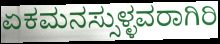
ಏಕಮನಸ್ಸುಳ್ಳವರಾಗಿರಿ